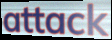
attack